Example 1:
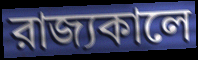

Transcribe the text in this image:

রাজ্যকালে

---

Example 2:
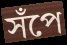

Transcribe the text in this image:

সঁপে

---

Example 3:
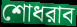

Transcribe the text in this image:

শোধরাব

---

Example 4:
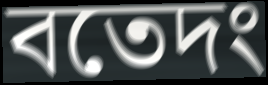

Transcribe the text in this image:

বতেদং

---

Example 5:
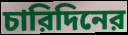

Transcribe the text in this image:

চারিদিনের